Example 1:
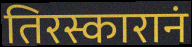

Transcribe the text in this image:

तिरस्कारानं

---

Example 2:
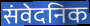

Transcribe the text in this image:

संवेदनिक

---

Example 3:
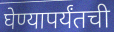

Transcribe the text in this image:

घेण्यापर्यंतची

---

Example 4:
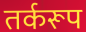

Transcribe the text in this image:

तर्करूप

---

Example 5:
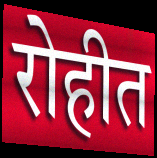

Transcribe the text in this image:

रोहीत